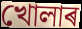
খোলাৰ